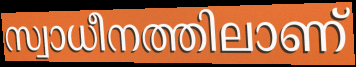
സ്വാധീനത്തിലാണ്